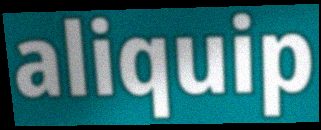
aliquip